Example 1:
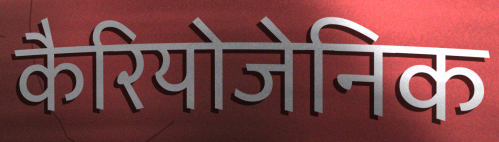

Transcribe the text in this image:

कैरियोजेनिक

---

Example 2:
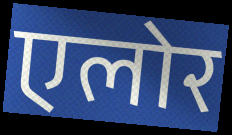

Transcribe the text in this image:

एलोर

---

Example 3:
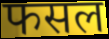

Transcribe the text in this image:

फसल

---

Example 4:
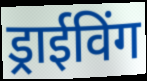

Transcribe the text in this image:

ड्राईविंग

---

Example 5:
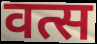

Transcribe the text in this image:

वत्स